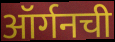
ऑर्गनची